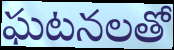
ఘటనలతో